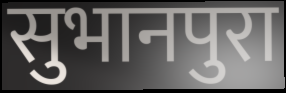
सुभानपुरा